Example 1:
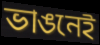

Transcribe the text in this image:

ভাঙনেই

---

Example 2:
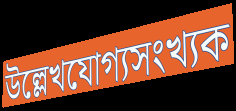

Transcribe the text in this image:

উল্লেখযোগ্যসংখ্যক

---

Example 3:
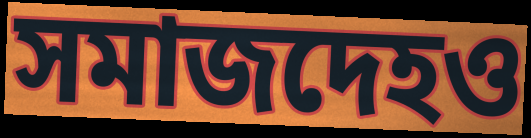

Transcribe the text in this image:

সমাজদেহও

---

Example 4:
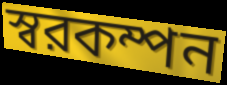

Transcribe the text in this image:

স্বরকম্পন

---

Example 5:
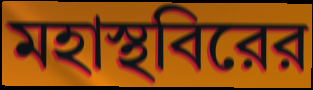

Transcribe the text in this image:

মহাস্থবিরের